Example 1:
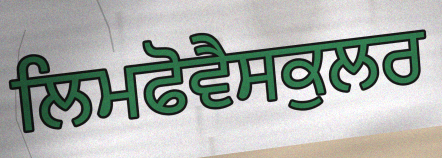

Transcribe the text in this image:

ਲਿਮਫੋਵੈਸਕੁਲਰ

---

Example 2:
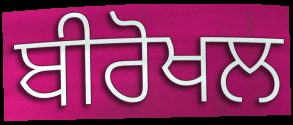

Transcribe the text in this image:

ਬੀਰੋਖਲ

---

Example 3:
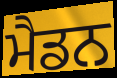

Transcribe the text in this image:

ਮੈਡਨ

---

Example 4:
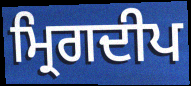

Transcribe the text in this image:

ਮ੍ਰਿਗਦੀਪ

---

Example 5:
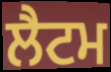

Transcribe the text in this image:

ਲੈਟਮ